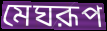
মেঘরূপ